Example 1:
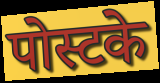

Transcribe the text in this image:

पोस्टके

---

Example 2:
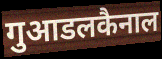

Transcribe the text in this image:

गुआडलकैनाल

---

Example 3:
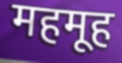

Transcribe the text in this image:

महमूह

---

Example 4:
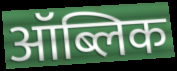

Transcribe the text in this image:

ऑब्लिक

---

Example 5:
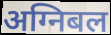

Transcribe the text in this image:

अग्निबल